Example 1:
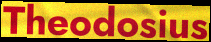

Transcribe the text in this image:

Theodosius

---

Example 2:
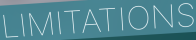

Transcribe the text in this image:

LIMITATIONS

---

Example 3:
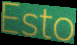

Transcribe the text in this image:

Esto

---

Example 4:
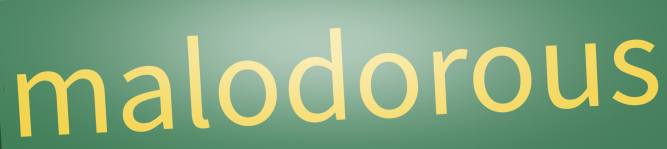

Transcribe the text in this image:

malodorous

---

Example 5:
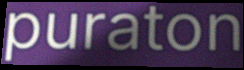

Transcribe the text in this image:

puraton